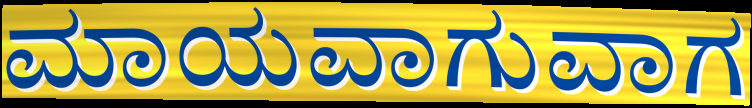
ಮಾಯವಾಗುವಾಗ